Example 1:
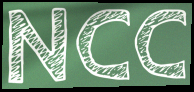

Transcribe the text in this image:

NCC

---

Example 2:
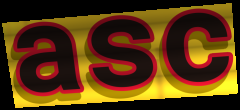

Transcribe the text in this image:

asc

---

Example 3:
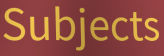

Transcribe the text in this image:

Subjects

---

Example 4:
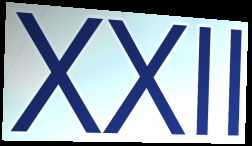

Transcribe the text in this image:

XXII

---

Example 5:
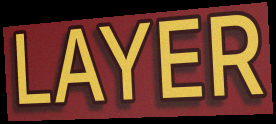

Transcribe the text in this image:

LAYER